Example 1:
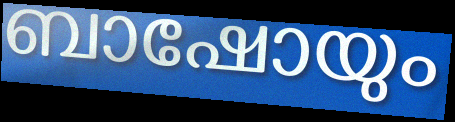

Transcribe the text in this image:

ബാഷോയും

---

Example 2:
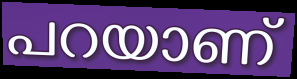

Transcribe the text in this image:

പറയാണ്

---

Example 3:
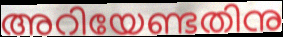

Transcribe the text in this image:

അറിയേണ്ടതിനു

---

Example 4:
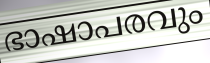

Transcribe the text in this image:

ഭാഷാപരവും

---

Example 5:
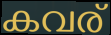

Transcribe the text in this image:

കവര്